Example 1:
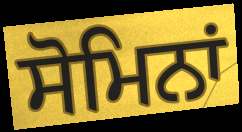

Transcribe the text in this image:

ਸੋਮਿਨਾਂ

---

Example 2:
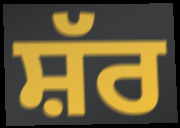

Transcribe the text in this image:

ਸ਼ੱਰ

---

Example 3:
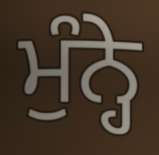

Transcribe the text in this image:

ਮੁੰਨ੍ਹੇ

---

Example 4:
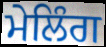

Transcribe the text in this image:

ਮੇਲਿੰਗ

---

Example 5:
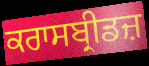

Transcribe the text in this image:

ਕਰਾਸਬ੍ਰੀਡਜ਼